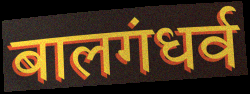
बालगंधर्व